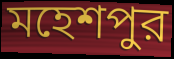
মহেশপুর